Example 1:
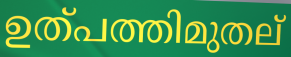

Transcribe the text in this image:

ഉത്പത്തിമുതല്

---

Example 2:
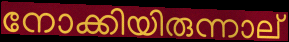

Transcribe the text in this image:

നോക്കിയിരുന്നാല്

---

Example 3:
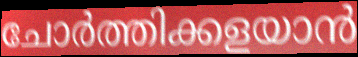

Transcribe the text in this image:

ചോർത്തിക്കളയാൻ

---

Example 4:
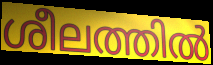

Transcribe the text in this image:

ശീലത്തിൽ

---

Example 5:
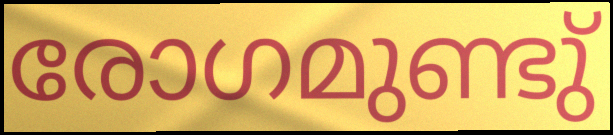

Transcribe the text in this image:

രോഗമുണ്ടു്